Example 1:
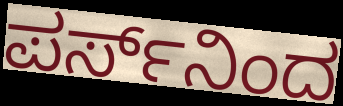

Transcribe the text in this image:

ಪರ್ಸ್‌ನಿಂದ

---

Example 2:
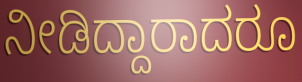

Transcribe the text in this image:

ನೀಡಿದ್ದಾರಾದರೂ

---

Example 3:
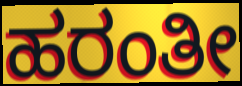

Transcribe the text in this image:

ಹರಂತೀ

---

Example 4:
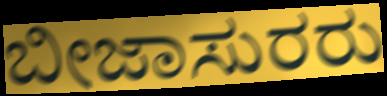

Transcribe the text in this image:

ಬೀಜಾಸುರರು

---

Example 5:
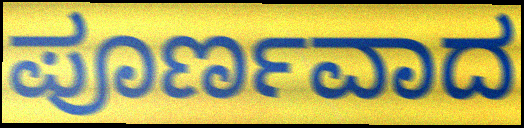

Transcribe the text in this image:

ಪೂರ್ಣವಾದ